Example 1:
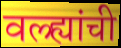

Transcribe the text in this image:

वल्ह्यांची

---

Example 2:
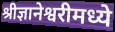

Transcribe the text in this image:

श्रीज्ञानेश्वरीमध्ये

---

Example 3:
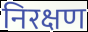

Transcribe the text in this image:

निरक्षण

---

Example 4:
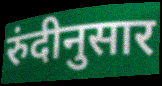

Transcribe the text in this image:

रुंदीनुसार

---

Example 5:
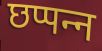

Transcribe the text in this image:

छप्पन्न